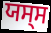
ਯਸ੍ਸ